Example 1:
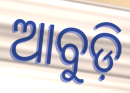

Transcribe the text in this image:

ଆବୁଡ଼ି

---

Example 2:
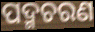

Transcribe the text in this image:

ପଦ୍ମଚରଣ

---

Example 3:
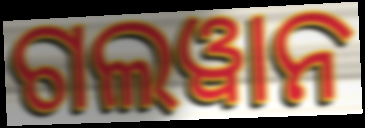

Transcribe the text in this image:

ଗଲୱାନ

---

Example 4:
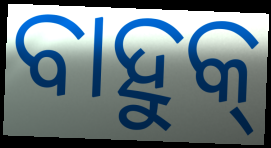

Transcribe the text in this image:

ବାହୁକ୍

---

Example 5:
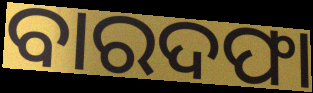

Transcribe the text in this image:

ବାରଦଫା